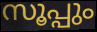
സൂപ്പും